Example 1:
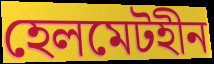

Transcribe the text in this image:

হেলমেটহীন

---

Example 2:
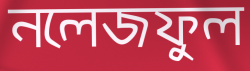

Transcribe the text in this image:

নলেজফুল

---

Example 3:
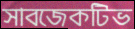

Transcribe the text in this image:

সাবজেকটিভ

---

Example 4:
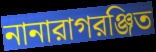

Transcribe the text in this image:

নানারাগরঞ্জিত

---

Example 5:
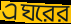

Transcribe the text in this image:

এঘরের